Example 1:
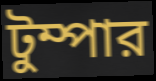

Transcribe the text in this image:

টুম্পার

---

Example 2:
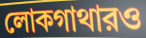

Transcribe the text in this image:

লোকগাথারও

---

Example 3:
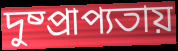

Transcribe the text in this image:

দুষ্প্রাপ্যতায়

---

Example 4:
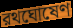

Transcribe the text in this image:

রথঘোষেণ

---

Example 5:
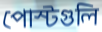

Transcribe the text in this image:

পোস্টগুলি